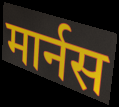
मार्नस